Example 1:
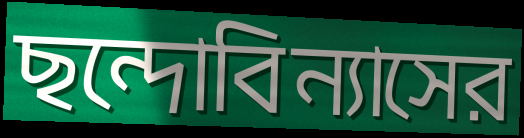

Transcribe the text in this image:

ছন্দোবিন্যাসের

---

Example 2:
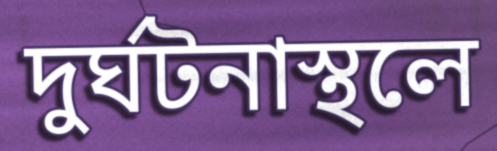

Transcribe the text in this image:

দুর্ঘটনাস্থলে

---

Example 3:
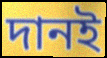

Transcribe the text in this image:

দানই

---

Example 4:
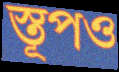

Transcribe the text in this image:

স্তূপও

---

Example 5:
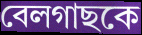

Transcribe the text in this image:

বেলগাছকে